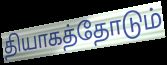
தியாகத்தோடும்